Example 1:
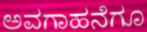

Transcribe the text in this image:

ಅವಗಾಹನೆಗೂ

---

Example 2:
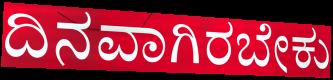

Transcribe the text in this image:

ದಿನವಾಗಿರಬೇಕು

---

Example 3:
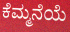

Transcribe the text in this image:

ಕೆಮ್ಮನೆಯೆ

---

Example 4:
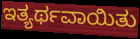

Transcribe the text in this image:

ಇತ್ಯರ್ಥವಾಯಿತು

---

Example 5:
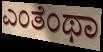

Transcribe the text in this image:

ಎಂತೆಂಥಾ